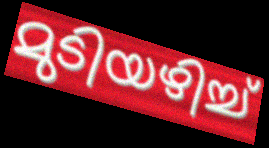
മുടിയഴിച്ച്